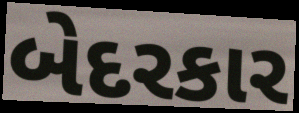
બેદરકાર